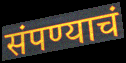
संपण्याचं